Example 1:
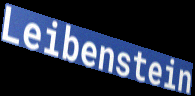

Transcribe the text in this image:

Leibenstein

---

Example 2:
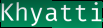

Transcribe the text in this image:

Khyatti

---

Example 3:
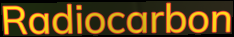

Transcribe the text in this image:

Radiocarbon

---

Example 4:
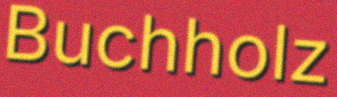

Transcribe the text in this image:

Buchholz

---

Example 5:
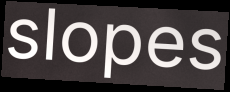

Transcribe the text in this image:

slopes